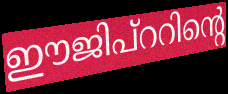
ഈജിപ്ററിന്റെ